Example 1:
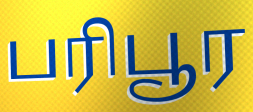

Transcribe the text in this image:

பரிபூர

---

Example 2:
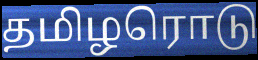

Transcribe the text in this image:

தமிழரொடு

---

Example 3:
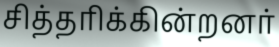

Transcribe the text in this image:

சித்தரிக்கின்றனர்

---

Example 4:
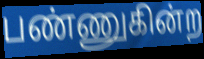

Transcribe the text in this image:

பண்ணுகின்ற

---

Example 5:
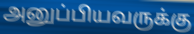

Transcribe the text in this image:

அனுப்பியவருக்கு